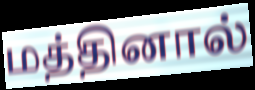
மத்தினால்